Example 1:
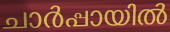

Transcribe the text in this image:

ചാർപ്പായിൽ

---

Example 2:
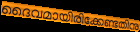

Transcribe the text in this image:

ദൈവമായിരിക്കേണ്ടതിനു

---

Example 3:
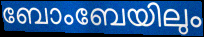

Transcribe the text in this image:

ബോംബേയിലും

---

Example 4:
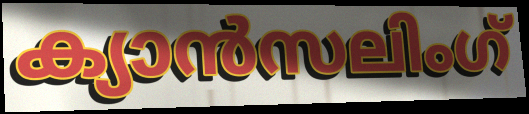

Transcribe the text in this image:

ക്യാൻസലിംഗ്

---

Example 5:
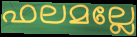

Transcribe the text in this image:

ഫലമല്ലേ